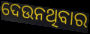
ଦେଉନଥିବାର